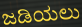
ಜಡಿಯಲು